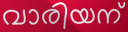
വാരിയന്